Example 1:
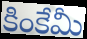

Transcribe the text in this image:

కింకేమీ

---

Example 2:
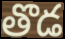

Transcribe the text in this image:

తొడ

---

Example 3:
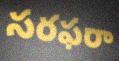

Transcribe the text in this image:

సరఫరా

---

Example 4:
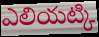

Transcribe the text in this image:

ఎలియట్కి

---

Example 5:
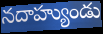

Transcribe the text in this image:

నదాహ్యుండు